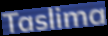
Taslima